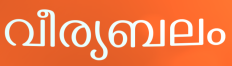
വീര്യബലം